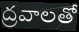
ద్రవాలతో